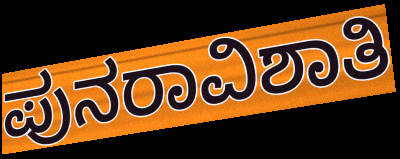
ಪುನರಾವಿಶಾತಿ